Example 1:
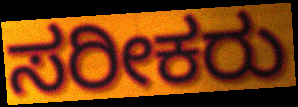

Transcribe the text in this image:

ಸರೀಕರು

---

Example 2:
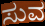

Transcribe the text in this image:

ಸುವ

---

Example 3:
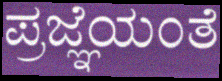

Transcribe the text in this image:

ಪ್ರಜ್ಞೆಯಂತೆ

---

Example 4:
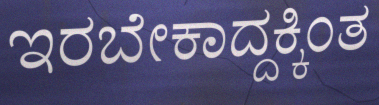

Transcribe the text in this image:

ಇರಬೇಕಾದ್ದಕ್ಕಿಂತ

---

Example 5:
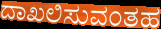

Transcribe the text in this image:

ದಾಖಲಿಸುವಂತಹ